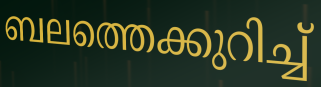
ബലത്തെക്കുറിച്ച്